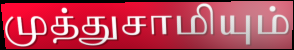
முத்துசாமியும்